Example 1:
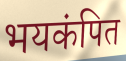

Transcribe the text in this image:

भयकंपित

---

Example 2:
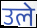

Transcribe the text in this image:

उले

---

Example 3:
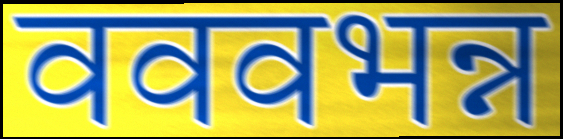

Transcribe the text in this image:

वववभन्न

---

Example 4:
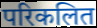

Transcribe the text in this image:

परिकलित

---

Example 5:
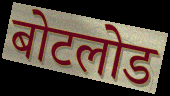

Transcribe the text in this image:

बोटलोड